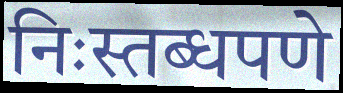
निःस्तब्धपणे